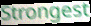
Strongest